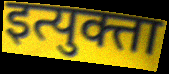
इत्युक्ता